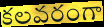
కలవరంగా